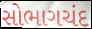
સોભાગચંદ